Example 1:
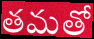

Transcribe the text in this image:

తమతో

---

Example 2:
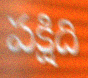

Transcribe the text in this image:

పక్షిది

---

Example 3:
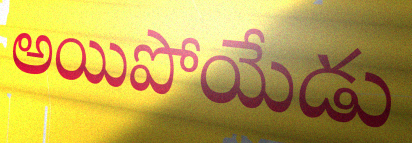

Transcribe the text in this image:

అయిపోయేడు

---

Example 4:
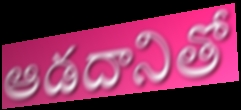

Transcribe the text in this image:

ఆడదానితో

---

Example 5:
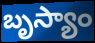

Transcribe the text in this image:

బృస్యాం